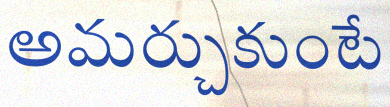
అమర్చుకుంటే